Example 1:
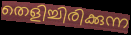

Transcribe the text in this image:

തെളിച്ചിരിക്കുന്ന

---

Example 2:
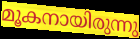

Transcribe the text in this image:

മൂകനായിരുന്നു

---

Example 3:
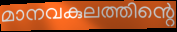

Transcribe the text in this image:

മാനവകുലത്തിന്റെ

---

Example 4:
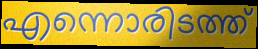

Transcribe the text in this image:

എന്നൊരിടത്ത്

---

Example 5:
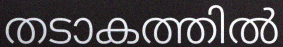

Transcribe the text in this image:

തടാകത്തിൽ